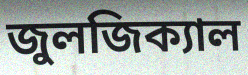
জুলজিক্যাল